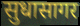
सुधासागर